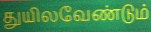
துயிலவேண்டும்